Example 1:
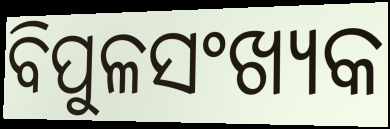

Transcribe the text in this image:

ବିପୁଳସଂଖ୍ୟକ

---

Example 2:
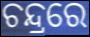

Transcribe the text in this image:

ଚନ୍ଦ୍ରରେ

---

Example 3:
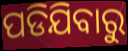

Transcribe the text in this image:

ପଡିଯିବାରୁ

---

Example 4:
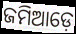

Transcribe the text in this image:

ଜମିଆଡ଼େ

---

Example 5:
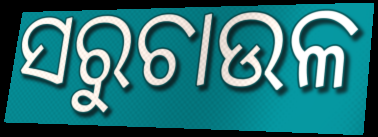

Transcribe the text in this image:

ସରୁଚାଉଳ